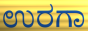
ಉರಗಾ